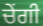
ਚੇਂਗੀ